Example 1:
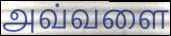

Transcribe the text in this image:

அவ்வளை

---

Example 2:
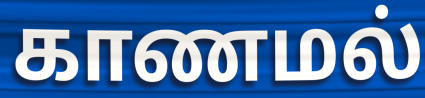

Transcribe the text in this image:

காணமல்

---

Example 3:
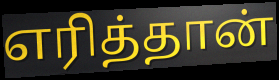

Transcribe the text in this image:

எரித்தான்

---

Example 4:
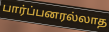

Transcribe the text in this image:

பார்ப்பனரல்லாத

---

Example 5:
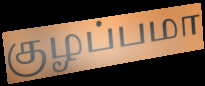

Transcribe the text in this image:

குழப்பமா